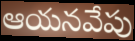
ఆయనవేపు